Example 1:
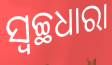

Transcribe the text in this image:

ସ୍ୱଚ୍ଛଧାରା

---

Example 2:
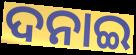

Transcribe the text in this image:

ଦନାଇ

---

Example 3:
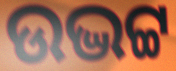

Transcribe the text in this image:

ଉଦ୍ଭଟ୍ଟ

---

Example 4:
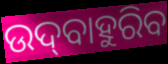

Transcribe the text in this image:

ଉଦ୍‌ବାହୁରିବ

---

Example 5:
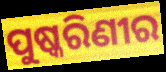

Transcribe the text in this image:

ପୁଷ୍କରିଣୀର